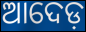
ଆଦେଡ଼